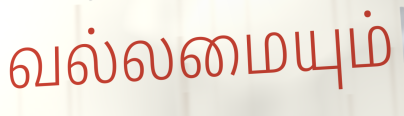
வல்லமையும்